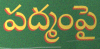
పద్మంపై